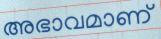
അഭാവമാണ്